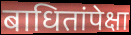
बाधितांपेक्षा